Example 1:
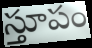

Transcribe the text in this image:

స్తూపం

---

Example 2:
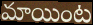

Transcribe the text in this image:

మాయింట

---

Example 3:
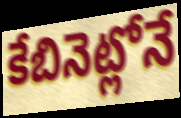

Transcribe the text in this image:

కేబినెట్లోనే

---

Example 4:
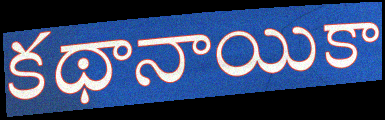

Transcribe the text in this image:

కథానాయికా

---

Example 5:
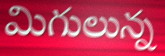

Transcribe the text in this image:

మిగులున్న